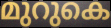
മുറുകെ